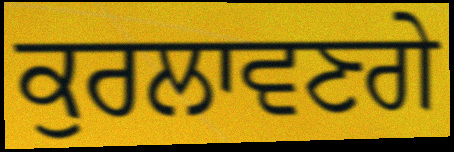
ਕੁਰਲਾਵਣਗੇ